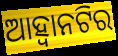
ଆହ୍ଵାନଟିର